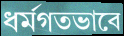
ধর্মগতভাবে